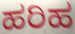
ಹರಿಹ